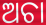
ଅଚା